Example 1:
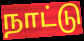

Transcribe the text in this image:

நாட்டு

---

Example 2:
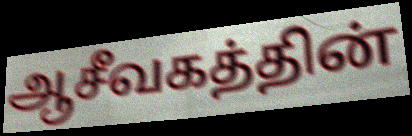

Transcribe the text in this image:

ஆசீவகத்தின்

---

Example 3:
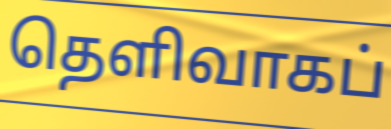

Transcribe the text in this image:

தெளிவாகப்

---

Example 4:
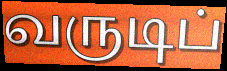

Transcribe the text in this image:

வருடிப்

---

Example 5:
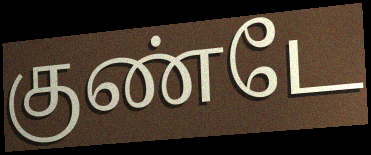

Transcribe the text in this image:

குண்டே